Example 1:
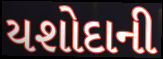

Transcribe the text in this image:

યશોદાની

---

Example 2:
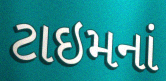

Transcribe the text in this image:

ટાઇમનાં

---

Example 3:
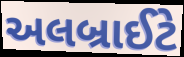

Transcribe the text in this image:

અલબ્રાઈટે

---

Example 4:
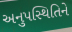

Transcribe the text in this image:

અનુપસ્થિતિને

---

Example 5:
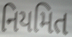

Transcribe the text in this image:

નિયમિત